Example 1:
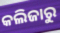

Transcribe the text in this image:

କଲିଜାରୁ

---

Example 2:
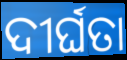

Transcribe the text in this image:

ଦୀର୍ଘତା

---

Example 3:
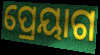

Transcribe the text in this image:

ପ୍ରେୟାଗ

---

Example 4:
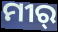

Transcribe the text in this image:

ମୀର୍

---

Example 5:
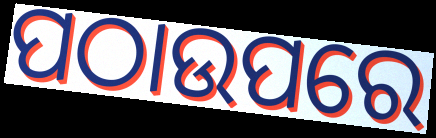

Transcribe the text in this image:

ପଠାଉପରେ